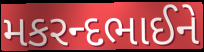
મકરન્દભાઈને